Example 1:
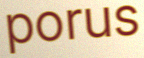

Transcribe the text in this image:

porus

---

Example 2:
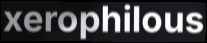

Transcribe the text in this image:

xerophilous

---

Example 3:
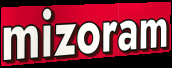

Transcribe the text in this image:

mizoram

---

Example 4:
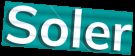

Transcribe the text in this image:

Soler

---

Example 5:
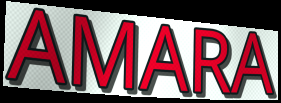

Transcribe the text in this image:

AMARA